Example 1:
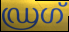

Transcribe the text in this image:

ഡ്രഗ്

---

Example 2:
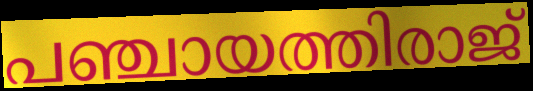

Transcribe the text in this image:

പഞ്ചായത്തിരാജ്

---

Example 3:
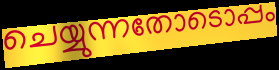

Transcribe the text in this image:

ചെയ്യുന്നതോടൊപ്പം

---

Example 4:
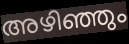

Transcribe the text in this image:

അഴിഞ്ഞും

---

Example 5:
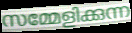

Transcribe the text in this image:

സമ്മേളിക്കുന്ന